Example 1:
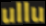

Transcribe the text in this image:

ullu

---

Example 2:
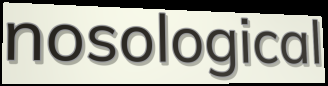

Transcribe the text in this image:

nosological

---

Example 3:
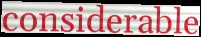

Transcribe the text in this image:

considerable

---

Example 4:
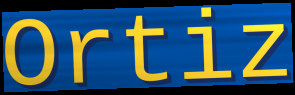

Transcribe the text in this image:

Ortiz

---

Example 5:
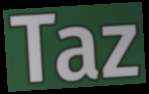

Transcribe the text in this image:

Taz